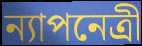
ন্যাপনেত্রী